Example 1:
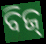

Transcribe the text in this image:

ବିଜ୍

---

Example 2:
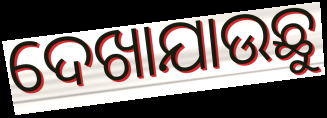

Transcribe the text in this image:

ଦେଖାଯାଉଛୁ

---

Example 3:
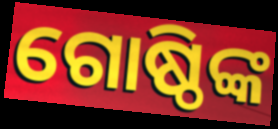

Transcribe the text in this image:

ଗୋଷ୍ଠିଙ୍କ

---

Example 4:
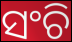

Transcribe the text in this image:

ସଂଚି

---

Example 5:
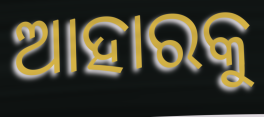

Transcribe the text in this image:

ଆହାରକୁ